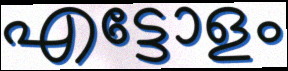
എട്ടോളം